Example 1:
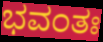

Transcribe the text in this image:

ಭವಂತಃ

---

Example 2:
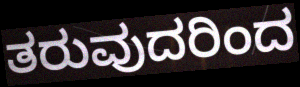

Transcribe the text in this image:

ತರುವುದರಿಂದ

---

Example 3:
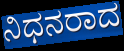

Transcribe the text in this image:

ನಿಧನರಾದ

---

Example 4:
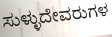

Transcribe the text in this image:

ಸುಳ್ಳುದೇವರುಗಳ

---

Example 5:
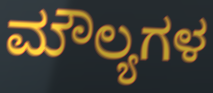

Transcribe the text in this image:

ಮೌಲ್ಯಗಳ